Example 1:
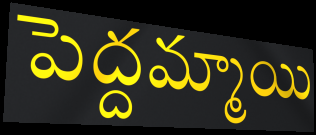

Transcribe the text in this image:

పెద్దమ్మాయి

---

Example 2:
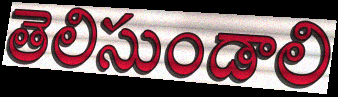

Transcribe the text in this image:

తెలిసుండాలి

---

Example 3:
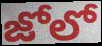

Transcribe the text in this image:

జోలో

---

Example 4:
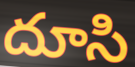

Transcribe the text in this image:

దూసి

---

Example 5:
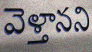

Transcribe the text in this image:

వెళ్తానని